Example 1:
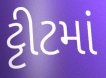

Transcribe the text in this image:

ટ્ટીટમાં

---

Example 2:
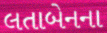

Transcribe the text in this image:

લતાબેનના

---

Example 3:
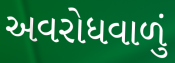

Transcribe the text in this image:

અવરોધવાળું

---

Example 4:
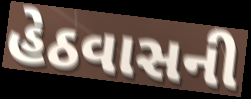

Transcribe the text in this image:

હેઠવાસની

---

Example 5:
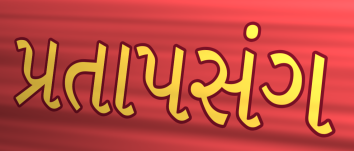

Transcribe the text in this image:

પ્રતાપસંગ